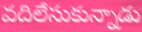
వదిలేసుకున్నాడు